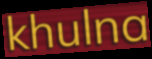
khulna